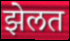
झेलत